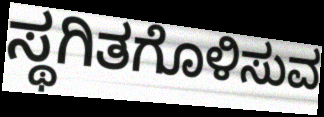
ಸ್ಥಗಿತಗೊಳಿಸುವ